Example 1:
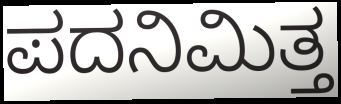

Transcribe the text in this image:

ಪದನಿಮಿತ್ತ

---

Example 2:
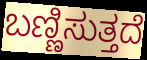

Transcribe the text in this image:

ಬಣ್ಣಿಸುತ್ತದೆ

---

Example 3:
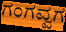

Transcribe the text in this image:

ಗಂಗವ್ವಗ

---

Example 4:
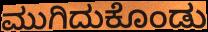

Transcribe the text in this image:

ಮುಗಿದುಕೊಂಡು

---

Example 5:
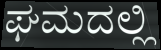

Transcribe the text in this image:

ಘಮದಲ್ಲಿ